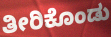
ತೀರಿಕೊಂಡು